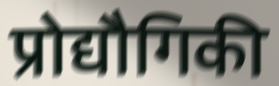
प्रोद्यौगिकी